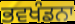
ਭਵਖੰਡਨਾ